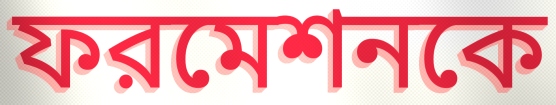
ফরমেশনকে